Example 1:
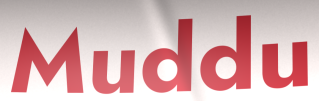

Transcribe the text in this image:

Muddu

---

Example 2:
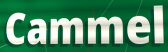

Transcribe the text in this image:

Cammel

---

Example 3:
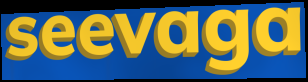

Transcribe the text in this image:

seevaga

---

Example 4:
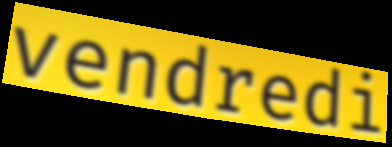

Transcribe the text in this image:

vendredi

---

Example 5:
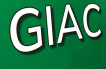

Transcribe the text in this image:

GIAC